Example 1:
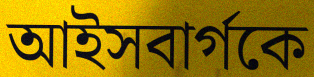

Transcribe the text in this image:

আইসবার্গকে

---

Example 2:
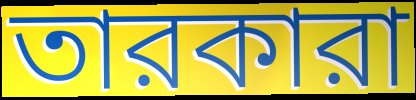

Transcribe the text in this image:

তারকারা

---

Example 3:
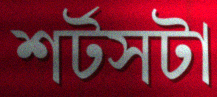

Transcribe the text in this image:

শর্টসটা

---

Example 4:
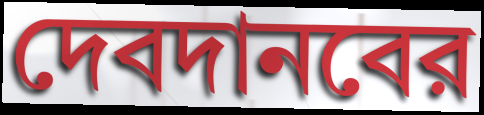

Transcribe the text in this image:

দেবদানবের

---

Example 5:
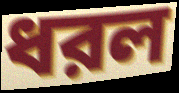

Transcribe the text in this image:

ধরল